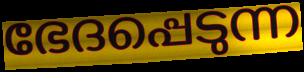
ഭേദപ്പെടുന്ന